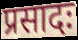
प्रसादः